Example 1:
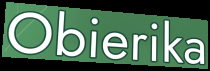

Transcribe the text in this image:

Obierika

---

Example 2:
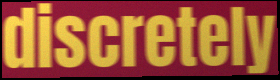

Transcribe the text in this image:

discretely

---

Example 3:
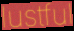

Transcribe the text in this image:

lustful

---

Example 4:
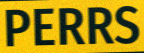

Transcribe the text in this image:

PERRS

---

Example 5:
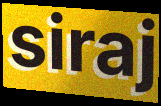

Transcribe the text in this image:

siraj